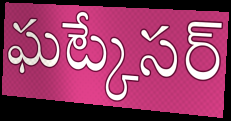
ఘట్కేసర్